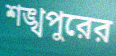
শঙ্খপুরের